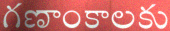
గణాంకాలకు